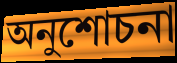
অনুশোচনা